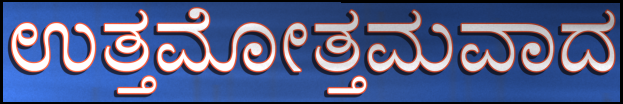
ಉತ್ತಮೋತ್ತಮವಾದ